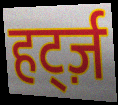
हर्ट्ज़